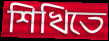
শিখিতে